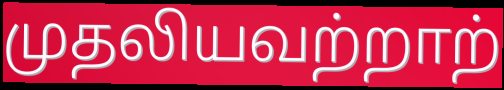
முதலியவற்றாற்